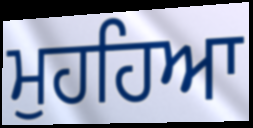
ਮੁਹਹਿਆ